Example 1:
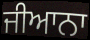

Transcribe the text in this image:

ਜੀਆਨਾ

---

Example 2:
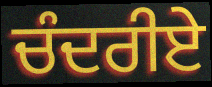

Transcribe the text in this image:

ਚੰਦਰੀਏ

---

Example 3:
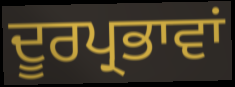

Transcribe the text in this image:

ਦੂਰਪ੍ਰਭਾਵਾਂ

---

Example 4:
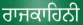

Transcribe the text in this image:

ਰਾਜਕਾਹਿਨੀ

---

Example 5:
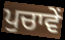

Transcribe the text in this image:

ਪੁਚਾਵੇਂ